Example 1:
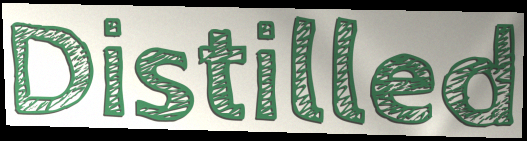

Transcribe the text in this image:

Distilled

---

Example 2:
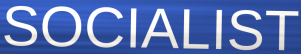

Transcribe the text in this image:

SOCIALIST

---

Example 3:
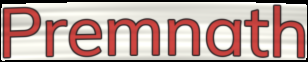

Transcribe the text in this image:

Premnath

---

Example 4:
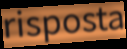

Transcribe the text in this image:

risposta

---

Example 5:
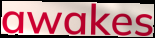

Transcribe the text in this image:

awakes